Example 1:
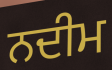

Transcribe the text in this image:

ਨਦੀਮ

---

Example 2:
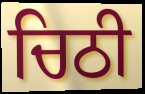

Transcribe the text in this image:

ਚਿਠੀ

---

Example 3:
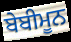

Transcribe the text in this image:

ਬੇਬੀਮੂਨ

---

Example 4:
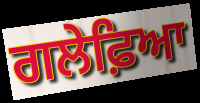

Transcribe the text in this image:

ਗਲੇਫ਼ਿਆ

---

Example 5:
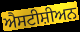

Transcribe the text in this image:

ਐਸਟੀਸ਼ੀਅਨ